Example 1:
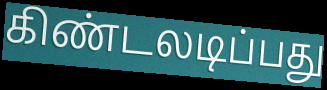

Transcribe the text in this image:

கிண்டலடிப்பது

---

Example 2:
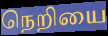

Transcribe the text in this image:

நெறியை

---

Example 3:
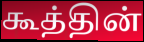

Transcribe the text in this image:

கூத்தின்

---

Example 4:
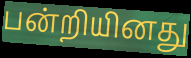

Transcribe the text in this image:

பன்றியினது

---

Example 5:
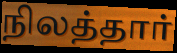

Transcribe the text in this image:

நிலத்தார்